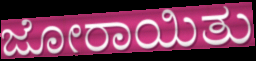
ಜೋರಾಯಿತು